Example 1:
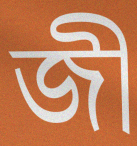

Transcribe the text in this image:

জী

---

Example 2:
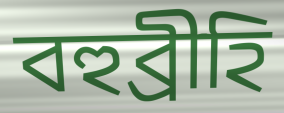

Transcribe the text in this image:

বহুব্ৰীহি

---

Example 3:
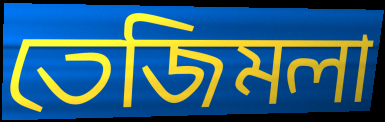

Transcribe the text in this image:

তেজিমলা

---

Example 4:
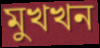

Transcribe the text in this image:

মুখখন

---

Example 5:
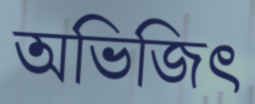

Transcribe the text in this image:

অভিজিৎ